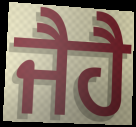
ਜੈਹੈ